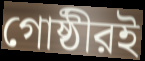
গোষ্ঠীরই